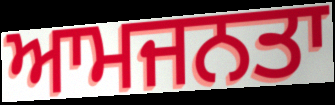
ਆਮਜਨਤਾ